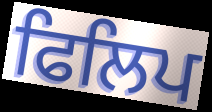
ਫਿਲਿਪ